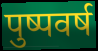
पुष्पवर्ष